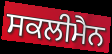
ਸਕਲੀਮੈਨ